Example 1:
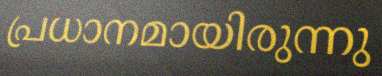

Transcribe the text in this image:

പ്രധാനമായിരുന്നു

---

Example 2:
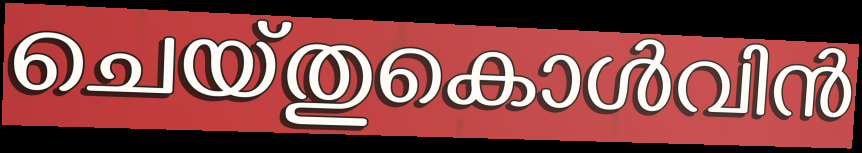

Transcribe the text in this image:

ചെയ്തുകൊൾവിൻ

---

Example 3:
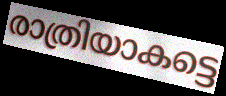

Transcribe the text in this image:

രാത്രിയാകട്ടെ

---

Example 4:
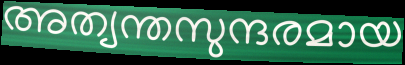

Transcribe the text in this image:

അത്യന്തസുന്ദരമായ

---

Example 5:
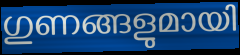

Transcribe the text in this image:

ഗുണങ്ങളുമായി